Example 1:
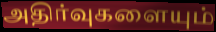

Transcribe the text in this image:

அதிர்வுகளையும்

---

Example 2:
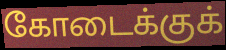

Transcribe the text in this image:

கோடைக்குக்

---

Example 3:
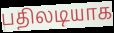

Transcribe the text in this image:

பதிலடியாக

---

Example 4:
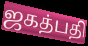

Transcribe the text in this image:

ஜகத்பதி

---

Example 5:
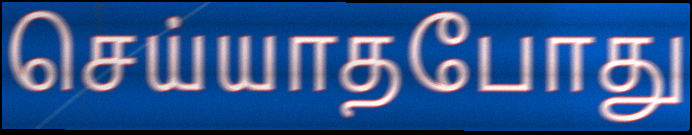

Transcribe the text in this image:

செய்யாதபோது